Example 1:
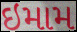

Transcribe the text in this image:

ઇમામ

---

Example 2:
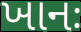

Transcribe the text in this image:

ખાનઃ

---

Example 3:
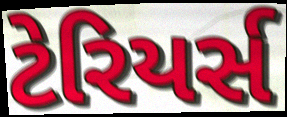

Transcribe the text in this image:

ટેરિયર્સ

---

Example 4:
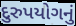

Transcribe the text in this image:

દુરુપયોગનું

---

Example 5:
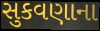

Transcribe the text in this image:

સુકવણાના